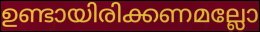
ഉണ്ടായിരിക്കണമല്ലോ